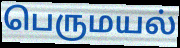
பெருமயல்